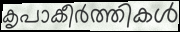
കൃപാകീർത്തികൾ